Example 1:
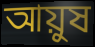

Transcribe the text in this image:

আয়ুষ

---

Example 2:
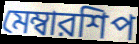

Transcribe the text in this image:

মেম্বারশিপ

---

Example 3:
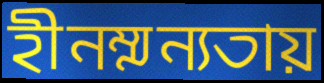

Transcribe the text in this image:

হীনম্মন্যতায়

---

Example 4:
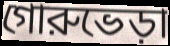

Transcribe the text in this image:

গোরুভেড়া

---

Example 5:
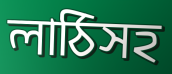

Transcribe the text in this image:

লাঠিসহ